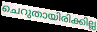
ചെറുതായിരിക്കില്ല